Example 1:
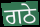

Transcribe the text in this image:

ਗਠੇ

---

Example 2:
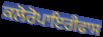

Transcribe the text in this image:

ਕਲੋਰੋਪਾਇਰੀਫਾਸ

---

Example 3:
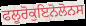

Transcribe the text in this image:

ਫਲੂਰੋਕੁਇਨੋਲੋਨਸ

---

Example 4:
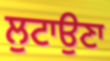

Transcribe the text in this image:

ਲੁਟਾਉਣਾ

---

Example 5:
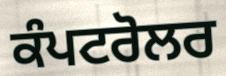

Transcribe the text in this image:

ਕੰਪਟਰੋਲਰ